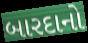
બારદાનો